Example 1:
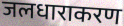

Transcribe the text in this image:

जलधाराकरण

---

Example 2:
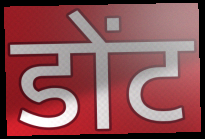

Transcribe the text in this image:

डोंट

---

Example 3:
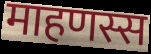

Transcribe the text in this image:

माहणस्स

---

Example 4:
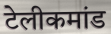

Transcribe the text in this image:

टेलीकमांड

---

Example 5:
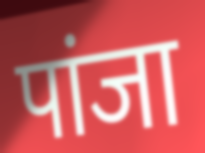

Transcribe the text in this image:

पांजा